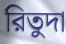
রিতুদা